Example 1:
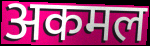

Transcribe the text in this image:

अकमल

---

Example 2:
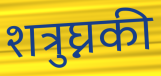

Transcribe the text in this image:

शत्रुघ्नकी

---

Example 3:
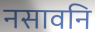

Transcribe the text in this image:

नसावनि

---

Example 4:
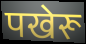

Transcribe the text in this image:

पखेरू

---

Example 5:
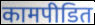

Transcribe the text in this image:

कामपीडित